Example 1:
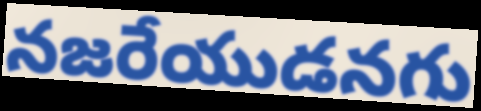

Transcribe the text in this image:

నజరేయుడనగు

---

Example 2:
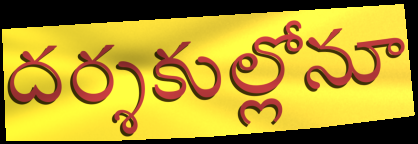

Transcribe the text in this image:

దర్శకుల్లోనూ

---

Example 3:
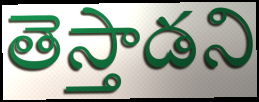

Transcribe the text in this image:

తెస్తాడని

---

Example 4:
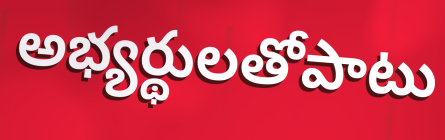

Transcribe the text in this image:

అభ్యర్థులతోపాటు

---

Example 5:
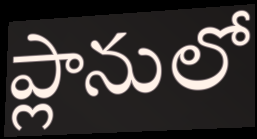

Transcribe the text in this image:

ప్లానులో